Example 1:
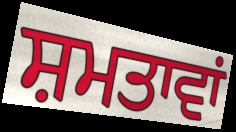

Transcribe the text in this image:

ਸ਼ਮਤਾਵਾਂ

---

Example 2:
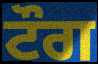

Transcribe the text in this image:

ਟੌਗ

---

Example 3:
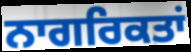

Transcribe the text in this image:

ਨਾਗਰਿਕਤਾਂ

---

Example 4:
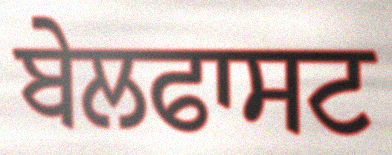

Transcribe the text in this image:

ਬੇਲਫਾਸਟ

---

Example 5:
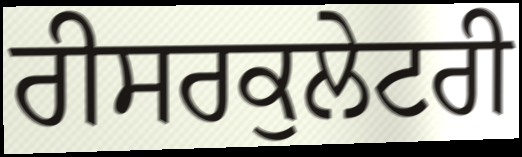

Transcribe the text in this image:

ਰੀਸਰਕੁਲੇਟਰੀ